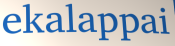
ekalappai